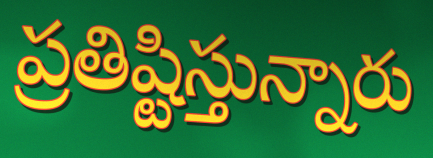
ప్రతిష్టిస్తున్నారు